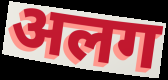
अलग